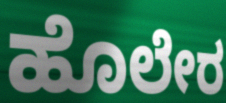
ಹೊಲೇರ